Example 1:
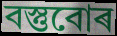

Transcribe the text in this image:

বস্তুবোৰ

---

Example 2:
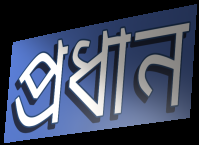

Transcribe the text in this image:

প্ৰধান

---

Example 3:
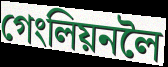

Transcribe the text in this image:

গেংলিয়নলৈ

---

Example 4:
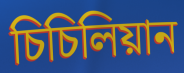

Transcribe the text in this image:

চিচিলিয়ান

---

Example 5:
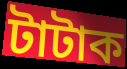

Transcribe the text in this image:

টাটাক